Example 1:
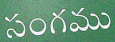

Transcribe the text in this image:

సంగము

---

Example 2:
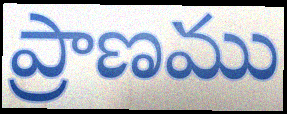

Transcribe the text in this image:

ప్రాణము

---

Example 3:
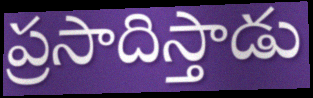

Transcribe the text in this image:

ప్రసాదిస్తాడు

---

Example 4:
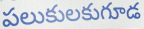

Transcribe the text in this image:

పలుకులకుగూడ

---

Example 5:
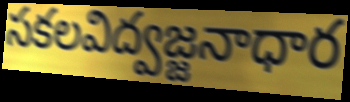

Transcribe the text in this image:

సకలవిద్వజ్జనాధార